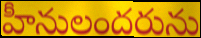
హీనులందరును